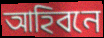
আহিবনে